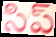
సిప్